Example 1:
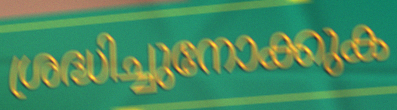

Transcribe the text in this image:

ശ്രദ്ധിച്ചുനോക്കുക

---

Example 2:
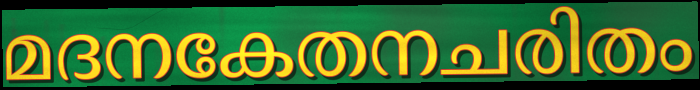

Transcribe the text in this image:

മദനകേതനചരിതം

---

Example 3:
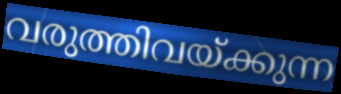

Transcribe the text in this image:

വരുത്തിവയ്ക്കുന്ന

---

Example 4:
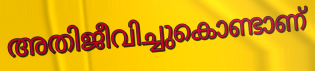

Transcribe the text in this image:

അതിജീവിച്ചുകൊണ്ടാണ്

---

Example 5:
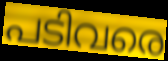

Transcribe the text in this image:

പടിവരെ